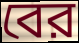
বের